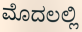
ಮೊದಲಲ್ಲಿ